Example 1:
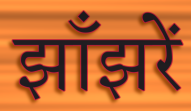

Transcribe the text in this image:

झाँझरें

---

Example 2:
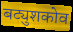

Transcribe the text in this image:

बट्युशकोव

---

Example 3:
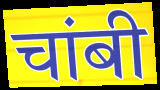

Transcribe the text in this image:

चांबी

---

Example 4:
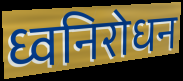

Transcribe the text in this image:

ध्वनिरोधन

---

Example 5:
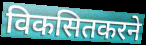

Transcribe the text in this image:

विकसितकरने